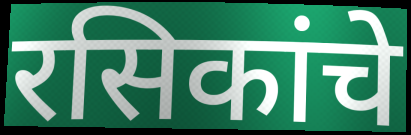
रसिकांचे